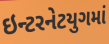
ઇન્ટરનેટયુગમાં